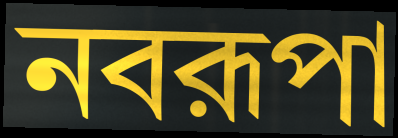
নবরূপা